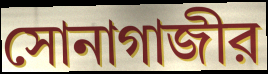
সোনাগাজীর